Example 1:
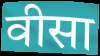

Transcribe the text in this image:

वीसा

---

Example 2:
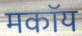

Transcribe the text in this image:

मकॉय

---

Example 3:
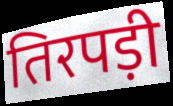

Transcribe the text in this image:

तिरपड़ी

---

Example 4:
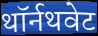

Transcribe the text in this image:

थॉर्नथवेट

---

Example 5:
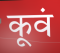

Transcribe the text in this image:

कूवं